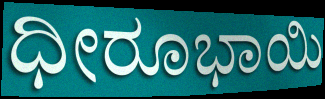
ಧೀರೂಭಾಯಿ